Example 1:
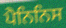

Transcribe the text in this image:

ਪੈਨਿਨਿਸ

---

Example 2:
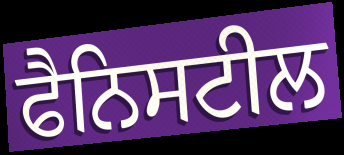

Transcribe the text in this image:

ਫੈਨਿਸਟੀਲ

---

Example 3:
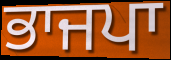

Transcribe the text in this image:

ਭਾਜਪਾ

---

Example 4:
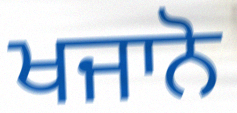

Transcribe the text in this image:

ਖਜਾਨੋ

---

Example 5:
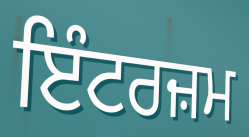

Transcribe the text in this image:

ਇੰਟਰਜ਼ਮ